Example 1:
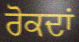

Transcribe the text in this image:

ਰੋਕਦਾਂ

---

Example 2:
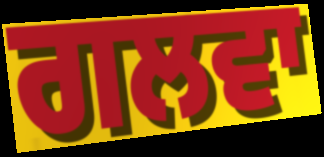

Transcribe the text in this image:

ਗਲਵਾ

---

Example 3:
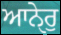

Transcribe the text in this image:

ਆਨੇੑਰੁ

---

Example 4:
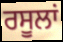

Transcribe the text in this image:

ਰਸੂਲਾਂ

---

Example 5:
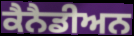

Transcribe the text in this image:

ਕੈਨੈਡੀਅਨ